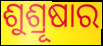
ଶୁଶ୍ରୂଷାର